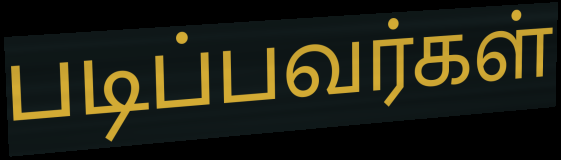
படிப்பவர்கள்